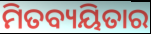
ମିତବ୍ୟୟିତାର